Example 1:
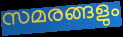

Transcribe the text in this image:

സമരങ്ങളും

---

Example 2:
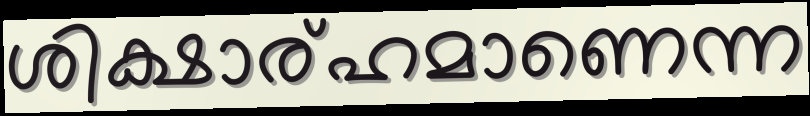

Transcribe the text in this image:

ശിക്ഷാര്ഹമാണെന്ന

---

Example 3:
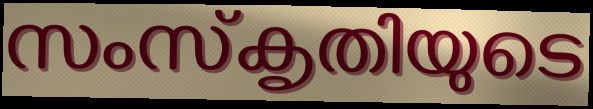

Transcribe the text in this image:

സംസ്‌കൃതിയുടെ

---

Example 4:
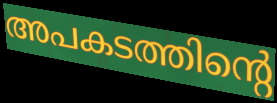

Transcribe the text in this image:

അപകടത്തിന്റെ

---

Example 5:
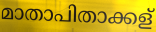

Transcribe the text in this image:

മാതാപിതാക്കള്